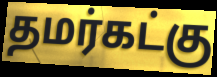
தமர்கட்கு